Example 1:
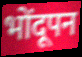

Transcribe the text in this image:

भोंदूपन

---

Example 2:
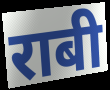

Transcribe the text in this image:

राबी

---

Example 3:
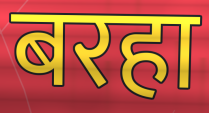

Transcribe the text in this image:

बरहा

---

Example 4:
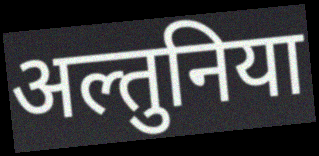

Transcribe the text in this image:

अल्तुनिया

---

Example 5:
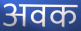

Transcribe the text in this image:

अवक